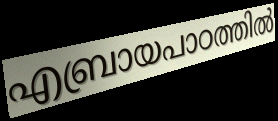
എബ്രായപാഠത്തിൽ